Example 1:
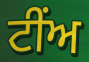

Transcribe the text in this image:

ਟੀਂਅ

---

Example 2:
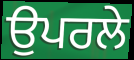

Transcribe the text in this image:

ਉਪਰਲੇ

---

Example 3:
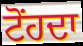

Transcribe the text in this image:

ਟੋਂਹਦਾ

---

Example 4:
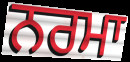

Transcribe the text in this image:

ਨਰਮਾ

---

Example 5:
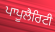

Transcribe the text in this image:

ਪਾਪੂਲੈਰਿਟੀ